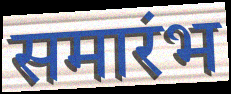
समारंभ